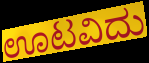
ಊಟವಿದು